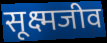
सूक्ष्मजीव